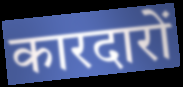
कारदारों